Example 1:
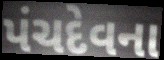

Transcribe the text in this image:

પંચદેવના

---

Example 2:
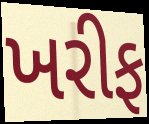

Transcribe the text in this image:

ખરીફ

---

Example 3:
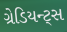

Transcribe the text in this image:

ગ્રેડિયન્ટ્સ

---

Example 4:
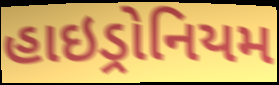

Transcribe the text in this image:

હાઇડ્રોનિયમ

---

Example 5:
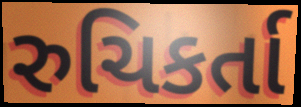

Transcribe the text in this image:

રુચિકર્તા